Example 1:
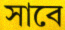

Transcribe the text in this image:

সাবে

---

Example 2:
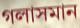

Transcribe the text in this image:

গলাসমান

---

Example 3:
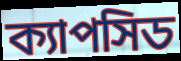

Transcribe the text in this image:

ক্যাপসিড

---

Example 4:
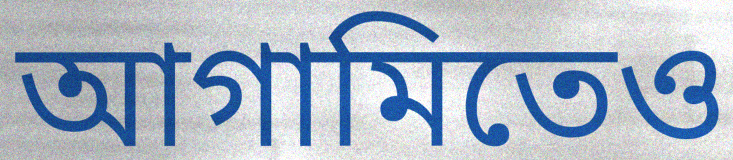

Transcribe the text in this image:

আগামিতেও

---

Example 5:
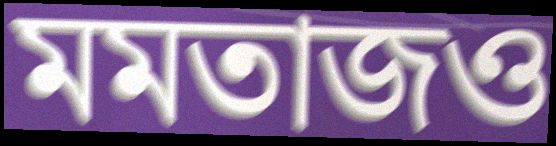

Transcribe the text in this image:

মমতাজও